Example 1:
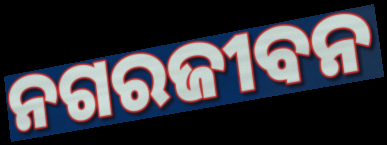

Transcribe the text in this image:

ନଗରଜୀବନ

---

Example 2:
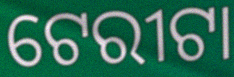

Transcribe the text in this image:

ଟେରୀଟା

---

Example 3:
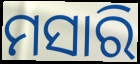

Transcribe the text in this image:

ମସାରି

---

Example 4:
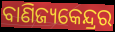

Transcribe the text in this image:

ବାଣିଜ୍ୟକେନ୍ଦ୍ରର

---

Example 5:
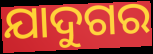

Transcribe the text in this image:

ଯାଦୁଗର